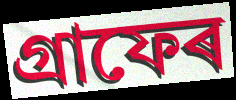
গ্ৰাফেৰ